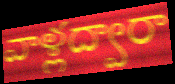
వాళ్లద్వారా